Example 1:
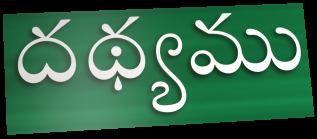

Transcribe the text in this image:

దథ్యము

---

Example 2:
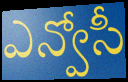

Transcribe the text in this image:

ఎన్వోసీ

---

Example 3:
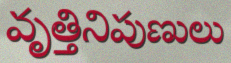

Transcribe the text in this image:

వృత్తినిపుణులు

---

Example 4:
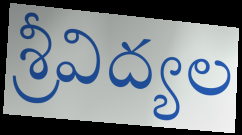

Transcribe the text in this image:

శ్రీవిద్యల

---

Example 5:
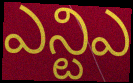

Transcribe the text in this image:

ఎన్టిఎ